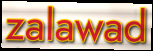
zalawad